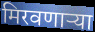
मिरवणाऱ्या